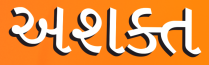
અશક્ત